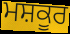
ਮਸ਼ਕੂਰ